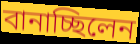
বানাচ্ছিলেন